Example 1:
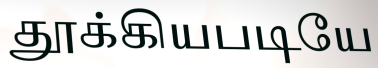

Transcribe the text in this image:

தூக்கியபடியே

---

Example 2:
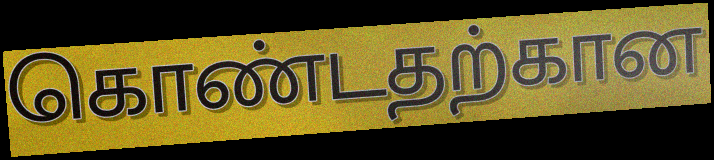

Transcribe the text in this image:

கொண்டதற்கான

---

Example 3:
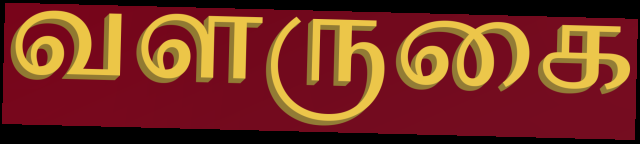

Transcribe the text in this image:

வளருகை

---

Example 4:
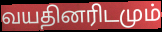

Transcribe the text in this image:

வயதினரிடமும்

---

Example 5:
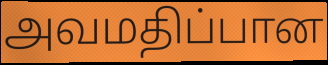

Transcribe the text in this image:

அவமதிப்பான